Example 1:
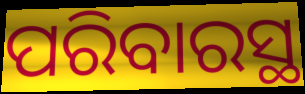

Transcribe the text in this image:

ପରିବାରସ୍ଥ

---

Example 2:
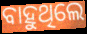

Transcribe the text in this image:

ବାହୁଥିଲେ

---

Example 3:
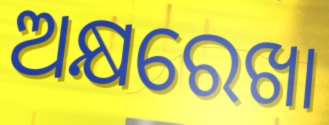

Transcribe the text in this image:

ଅକ୍ଷରେଖା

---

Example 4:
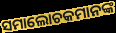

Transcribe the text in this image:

ସମାଲୋଚକମାନଙ୍କ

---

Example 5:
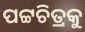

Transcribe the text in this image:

ପଟ୍ଟଚିତ୍ରକୁ